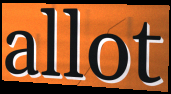
allot